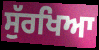
ਸੁੱਰਖਿਆ